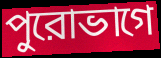
পুরোভাগে